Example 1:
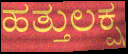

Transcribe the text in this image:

ಹತ್ತುಲಕ್ಷ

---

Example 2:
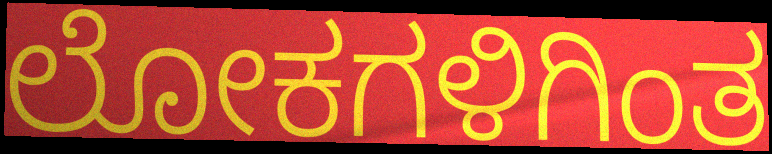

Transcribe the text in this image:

ಲೋಕಗಳಿಗಿಂತ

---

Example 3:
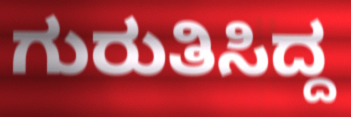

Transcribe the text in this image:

ಗುರುತಿಸಿದ್ದ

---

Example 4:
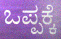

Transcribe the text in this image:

ಒಪ್ಪಕ್ಕೆ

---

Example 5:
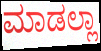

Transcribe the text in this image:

ಮಾಡಲ್ಲಾ